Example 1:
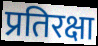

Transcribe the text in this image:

प्रतिरक्षा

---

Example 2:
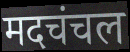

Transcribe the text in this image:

मदचंचल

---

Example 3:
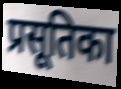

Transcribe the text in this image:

प्रसूतिका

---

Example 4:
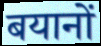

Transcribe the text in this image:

बयानों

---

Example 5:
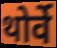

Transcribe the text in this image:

थोर्वे